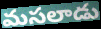
మసలాడు